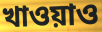
খাওয়াও